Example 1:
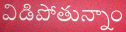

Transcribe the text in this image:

విడిపోతున్నాం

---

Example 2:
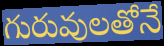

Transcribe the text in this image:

గురువులతోనే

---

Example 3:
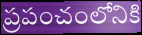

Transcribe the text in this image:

ప్రపంచంలోనికి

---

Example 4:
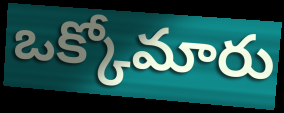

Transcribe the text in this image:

ఒక్కోమారు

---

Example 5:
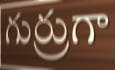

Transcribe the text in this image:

గుర్రుగా